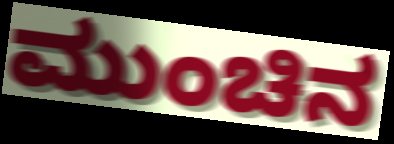
ಮುಂಚಿನ